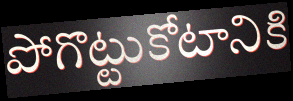
పోగొట్టుకోటానికి